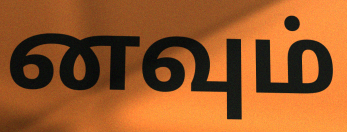
னவும்